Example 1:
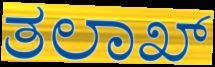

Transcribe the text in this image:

ತಲಾಖ್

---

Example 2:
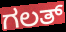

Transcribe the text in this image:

ಗಲತ್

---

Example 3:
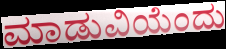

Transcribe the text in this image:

ಮಾಡುವಿಯೆಂದು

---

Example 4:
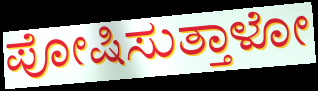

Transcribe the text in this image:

ಪೋಷಿಸುತ್ತಾಳೋ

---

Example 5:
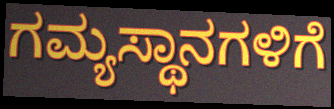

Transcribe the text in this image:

ಗಮ್ಯಸ್ಥಾನಗಳಿಗೆ